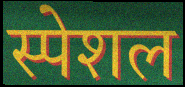
स्पेशल